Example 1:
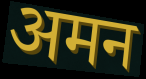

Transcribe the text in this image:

अमन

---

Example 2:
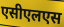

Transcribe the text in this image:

एसीएलएस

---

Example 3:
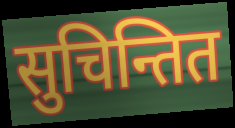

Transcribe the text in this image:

सुचिन्तित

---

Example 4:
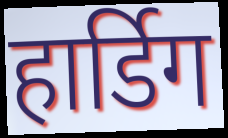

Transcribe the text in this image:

हार्डिग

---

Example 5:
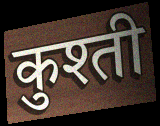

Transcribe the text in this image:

कुश्‍ती